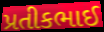
પ્રતીકભાઈ